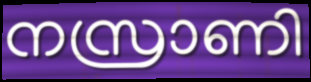
നസ്രാണി